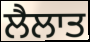
ਲੈਲਾਤ